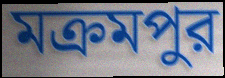
মক্রমপুর